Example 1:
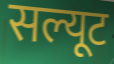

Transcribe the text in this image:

सल्यूट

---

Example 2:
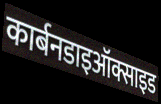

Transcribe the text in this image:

कार्बनडाइऑक्साइड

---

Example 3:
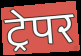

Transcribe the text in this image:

ट्रेपर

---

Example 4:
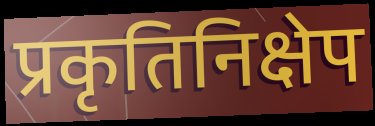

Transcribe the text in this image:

प्रकृतिनिक्षेप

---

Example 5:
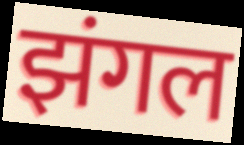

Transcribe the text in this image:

झंगल